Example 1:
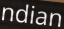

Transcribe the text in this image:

ndian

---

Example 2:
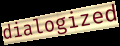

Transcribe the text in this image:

dialogized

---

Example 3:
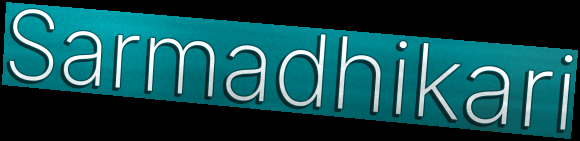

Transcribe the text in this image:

Sarmadhikari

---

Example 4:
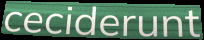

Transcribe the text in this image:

ceciderunt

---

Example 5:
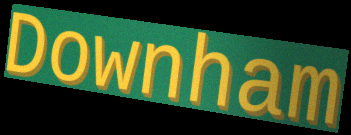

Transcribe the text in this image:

Downham